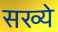
सख्ये